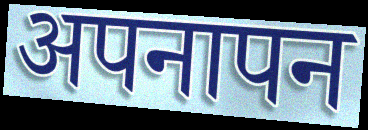
अपनापन